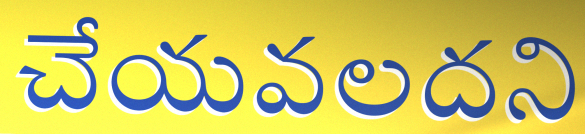
చేయవలదని